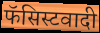
फॅसिस्टवादी